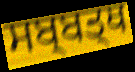
ਸਬ੍ਬਤ੍ਥ